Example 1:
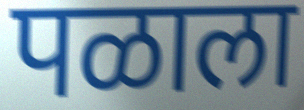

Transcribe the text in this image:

पळाला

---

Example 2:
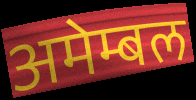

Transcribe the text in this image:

अमेम्बल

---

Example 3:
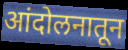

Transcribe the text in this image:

आंदोलनातून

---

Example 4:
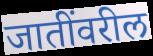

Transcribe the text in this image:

जातींवरील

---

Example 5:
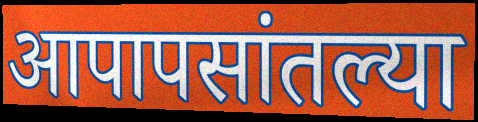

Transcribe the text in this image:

आपापसांतल्या